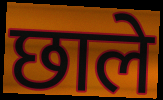
छाले